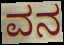
ವನ